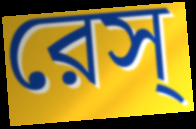
রেস্